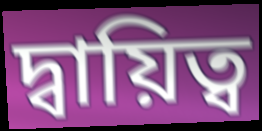
দ্বায়িত্ব